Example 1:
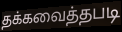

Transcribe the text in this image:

தக்கவைத்தபடி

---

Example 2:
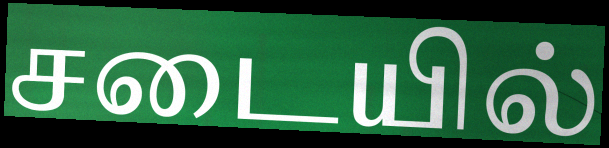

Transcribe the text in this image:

சடையில்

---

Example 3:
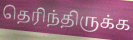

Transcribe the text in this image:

தெரிந்திருக்க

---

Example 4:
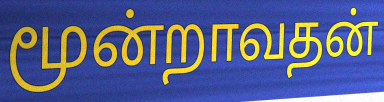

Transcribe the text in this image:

மூன்றாவதன்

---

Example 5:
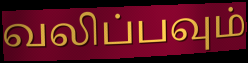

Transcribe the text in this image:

வலிப்பவும்